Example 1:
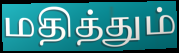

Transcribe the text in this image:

மதித்தும்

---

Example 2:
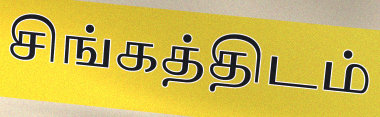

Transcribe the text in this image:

சிங்கத்திடம்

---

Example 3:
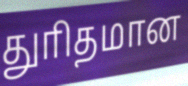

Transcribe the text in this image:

துரிதமான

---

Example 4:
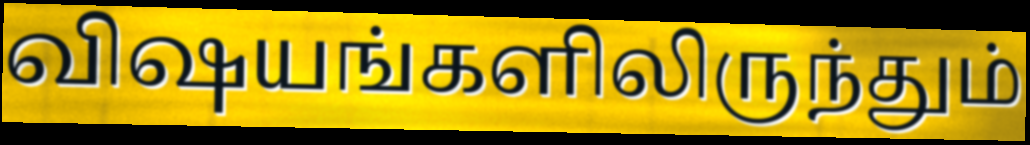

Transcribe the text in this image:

விஷயங்களிலிருந்தும்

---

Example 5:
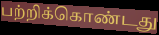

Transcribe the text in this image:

பற்றிக்கொண்டது